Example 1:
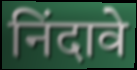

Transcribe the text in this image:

निंदावे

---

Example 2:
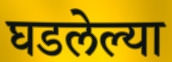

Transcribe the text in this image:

घडलेल्या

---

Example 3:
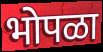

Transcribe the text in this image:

भोपळा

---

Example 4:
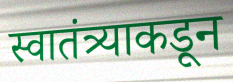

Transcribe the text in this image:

स्वातंत्र्याकडून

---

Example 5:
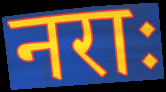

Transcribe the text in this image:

नराः